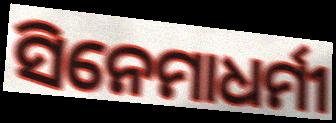
ସିନେମାଧର୍ମୀ